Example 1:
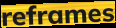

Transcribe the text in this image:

reframes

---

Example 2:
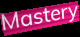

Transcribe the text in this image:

Mastery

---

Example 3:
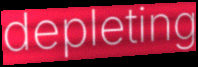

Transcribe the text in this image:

depleting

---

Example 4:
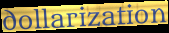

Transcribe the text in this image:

dollarization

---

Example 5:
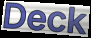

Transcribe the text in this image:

Deck